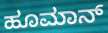
ಹೂಮಾನ್